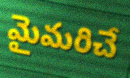
మైమరిచే